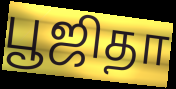
பூஜிதா